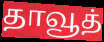
தாவூத்